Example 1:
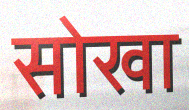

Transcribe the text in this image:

सोखा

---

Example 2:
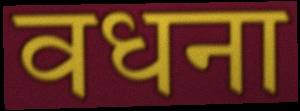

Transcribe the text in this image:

वधना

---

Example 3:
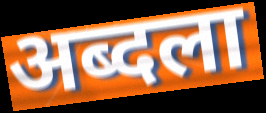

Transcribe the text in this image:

अब्दला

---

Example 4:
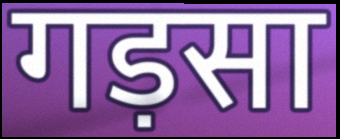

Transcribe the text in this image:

गड़सा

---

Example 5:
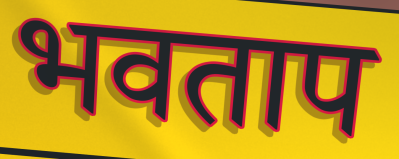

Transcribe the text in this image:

भवताप